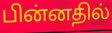
பின்னதில்